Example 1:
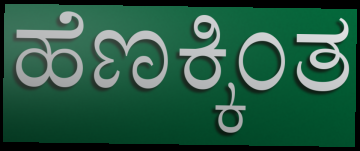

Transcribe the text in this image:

ಹೆಣಕ್ಕಿಂತ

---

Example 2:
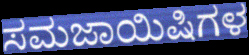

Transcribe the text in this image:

ಸಮಜಾಯಿಷಿಗಳ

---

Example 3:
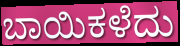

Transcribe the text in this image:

ಬಾಯಿಕಳೆದು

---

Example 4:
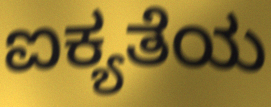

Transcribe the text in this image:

ಐಕ್ಯತೆಯ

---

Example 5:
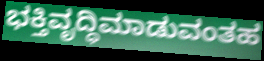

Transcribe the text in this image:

ಭಕ್ತಿವೃದ್ಧಿಮಾಡುವಂತಹ